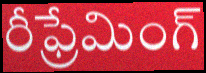
రీఫ్రేమింగ్